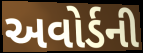
અવોર્ડની